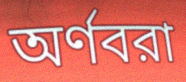
অর্ণবরা